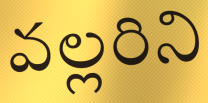
వల్లరిని